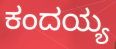
ಕಂದಯ್ಯ